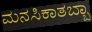
ಮನಸಿಕಾತಬ್ಬಾ